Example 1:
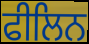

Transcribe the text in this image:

ਫੀਲਿਨ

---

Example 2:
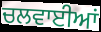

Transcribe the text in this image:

ਚਲਵਾਈਆਂ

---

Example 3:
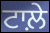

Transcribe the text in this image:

ਟਾਲ਼ੇ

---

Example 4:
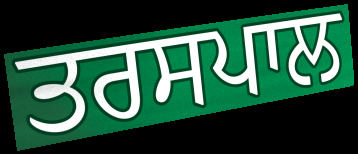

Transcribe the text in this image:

ਤਰਸਪਾਲ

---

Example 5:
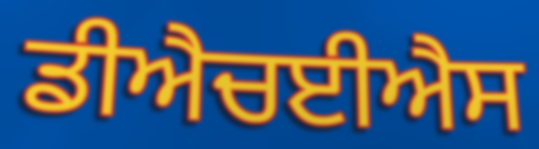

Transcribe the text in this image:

ਡੀਐਚਈਐਸ